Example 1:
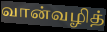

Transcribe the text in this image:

வான்வழித்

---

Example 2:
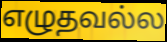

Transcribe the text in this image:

எழுதவல்ல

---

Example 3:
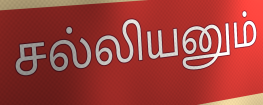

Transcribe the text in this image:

சல்லியனும்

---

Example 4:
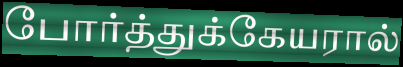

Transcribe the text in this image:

போர்த்துக்கேயரால்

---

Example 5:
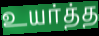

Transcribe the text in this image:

உயர்த்த